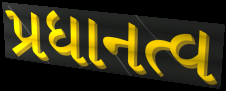
પ્રધાનત્વ